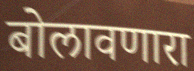
बोलावणारा